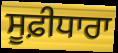
ਸੂਫ਼ੀਧਾਰਾ